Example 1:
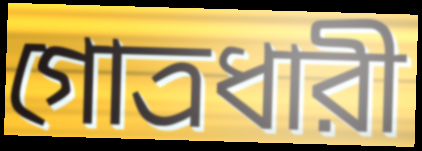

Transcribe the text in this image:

গোত্রধারী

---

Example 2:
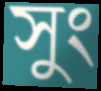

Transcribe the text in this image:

সুং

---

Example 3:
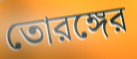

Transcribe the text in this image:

তোরঙ্গের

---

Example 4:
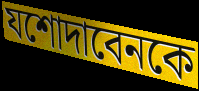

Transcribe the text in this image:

যশোদাবেনকে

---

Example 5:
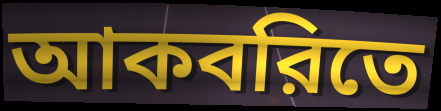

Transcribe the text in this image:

আকবরিতে